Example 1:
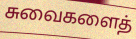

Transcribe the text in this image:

சுவைகளைத்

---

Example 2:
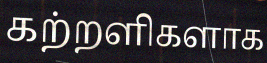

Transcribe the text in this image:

கற்றளிகளாக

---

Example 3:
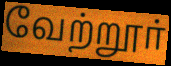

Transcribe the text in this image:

வேற்றூர்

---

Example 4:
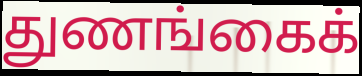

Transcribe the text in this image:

துணங்கைக்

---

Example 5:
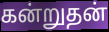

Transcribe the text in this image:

கன்றுதன்